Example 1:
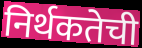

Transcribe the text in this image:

निर्थकतेची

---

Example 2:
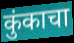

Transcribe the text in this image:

कुंकाचा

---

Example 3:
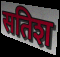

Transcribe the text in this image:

सतिश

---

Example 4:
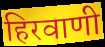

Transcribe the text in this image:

हिरवाणी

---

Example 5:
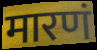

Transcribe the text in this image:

मारणं